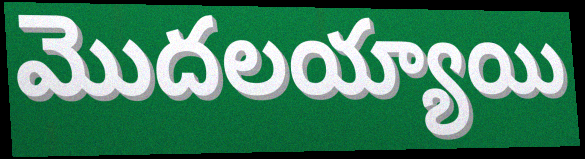
మొదలయ్యాయి